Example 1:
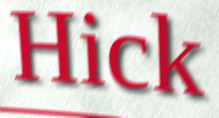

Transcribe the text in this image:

Hick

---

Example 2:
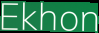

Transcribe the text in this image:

Ekhon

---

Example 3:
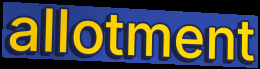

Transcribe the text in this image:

allotment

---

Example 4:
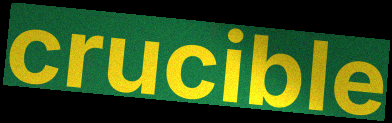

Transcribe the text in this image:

crucible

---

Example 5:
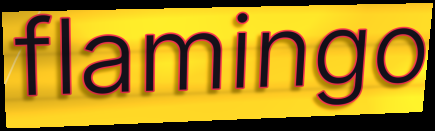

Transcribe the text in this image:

flamingo